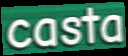
casta